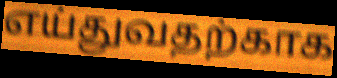
எய்துவதற்காக